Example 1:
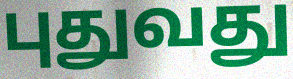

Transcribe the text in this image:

புதுவது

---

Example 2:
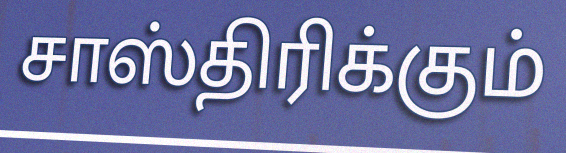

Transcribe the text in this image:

சாஸ்திரிக்கும்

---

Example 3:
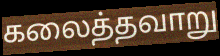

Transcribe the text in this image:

கலைத்தவாறு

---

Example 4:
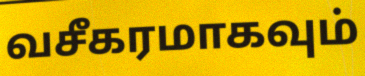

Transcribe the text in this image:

வசீகரமாகவும்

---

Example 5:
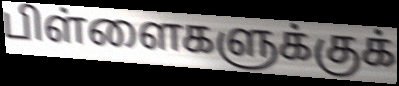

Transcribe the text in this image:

பிள்ளைகளுக்குக்